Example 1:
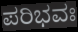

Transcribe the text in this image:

ಪರಿಭವಃ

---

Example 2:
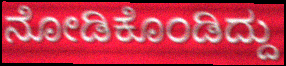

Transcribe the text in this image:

ನೋಡಿಕೊಂಡಿದ್ದು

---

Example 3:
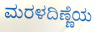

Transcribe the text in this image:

ಮರಳದಿಣ್ಣೆಯ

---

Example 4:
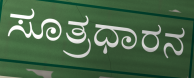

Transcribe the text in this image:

ಸೂತ್ರಧಾರನ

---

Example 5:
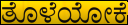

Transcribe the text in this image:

ತೊಳೆಯೋಕೆ